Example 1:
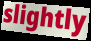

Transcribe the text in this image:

slightly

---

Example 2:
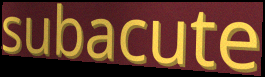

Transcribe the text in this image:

subacute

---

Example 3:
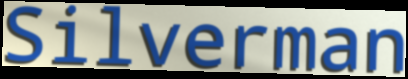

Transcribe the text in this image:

Silverman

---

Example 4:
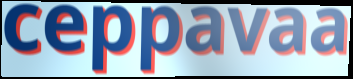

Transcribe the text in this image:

ceppavaa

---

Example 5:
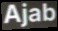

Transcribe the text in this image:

Ajab